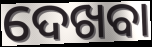
ଦେଖବା